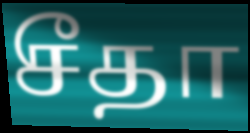
சீதா